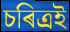
চৰিত্ৰই